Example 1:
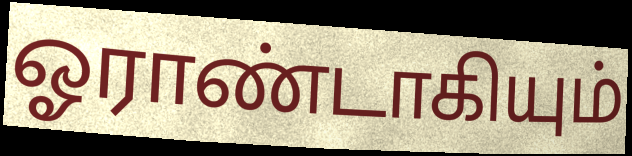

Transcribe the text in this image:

ஓராண்டாகியும்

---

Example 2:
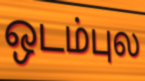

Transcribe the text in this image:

ஒடம்புல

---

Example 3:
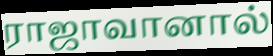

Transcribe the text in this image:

ராஜாவானால்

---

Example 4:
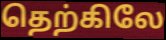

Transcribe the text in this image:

தெற்கிலே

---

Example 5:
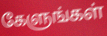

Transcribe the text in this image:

கேளுங்கள்